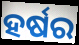
ହର୍ଷର